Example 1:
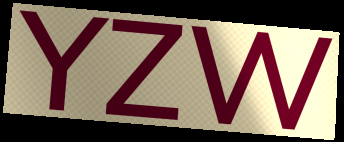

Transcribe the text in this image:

YZW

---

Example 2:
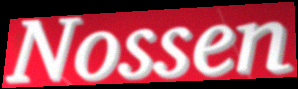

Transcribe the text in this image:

Nossen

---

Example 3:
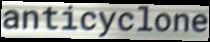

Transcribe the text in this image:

anticyclone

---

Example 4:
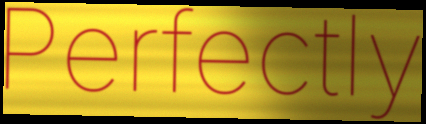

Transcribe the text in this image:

Perfectly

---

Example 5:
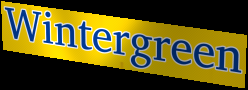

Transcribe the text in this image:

Wintergreen